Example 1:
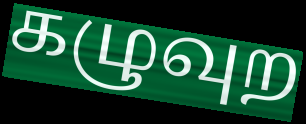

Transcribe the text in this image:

கழுவுற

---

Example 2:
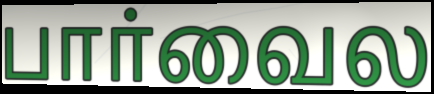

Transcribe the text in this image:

பார்வைல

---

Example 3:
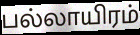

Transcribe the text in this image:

பல்லாயிரம்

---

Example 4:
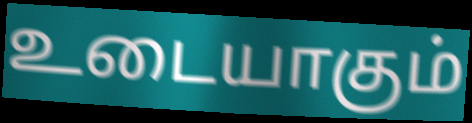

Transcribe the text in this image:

உடையாகும்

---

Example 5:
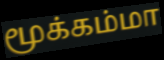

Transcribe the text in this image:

மூக்கம்மா